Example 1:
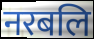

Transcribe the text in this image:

नरबलि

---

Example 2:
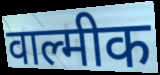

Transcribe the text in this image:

वाल्मीक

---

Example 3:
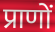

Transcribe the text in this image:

प्राणों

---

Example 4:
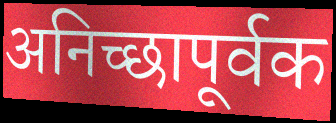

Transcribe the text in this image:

अनिच्छापूर्वक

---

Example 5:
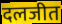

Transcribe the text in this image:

दलजीत